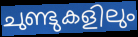
ചുണ്ടുകളിലും